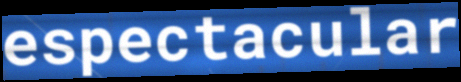
espectacular